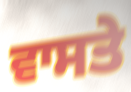
ਵਾਸਤੇ